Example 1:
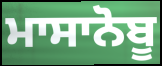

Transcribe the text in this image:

ਮਾਸਾਨੋਬੂ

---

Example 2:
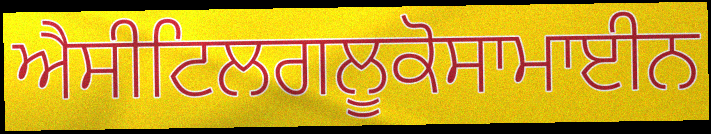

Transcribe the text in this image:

ਐਸੀਟਿਲਗਲੂਕੋਸਾਮਾਈਨ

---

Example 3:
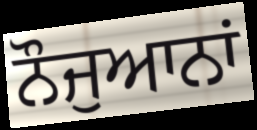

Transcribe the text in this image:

ਨੌਜੁਆਨਾਂ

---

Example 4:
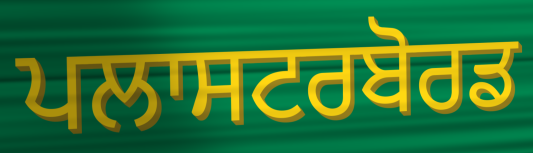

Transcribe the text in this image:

ਪਲਾਸਟਰਬੋਰਡ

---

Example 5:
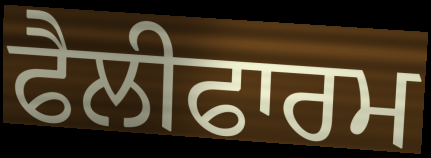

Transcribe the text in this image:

ਫੈਲੀਫਾਰਮ